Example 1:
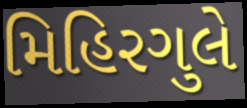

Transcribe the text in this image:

મિહિરગુલે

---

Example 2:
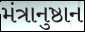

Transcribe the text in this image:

મંત્રાનુષ્ઠાન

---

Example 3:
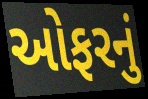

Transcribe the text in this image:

ઓફરનું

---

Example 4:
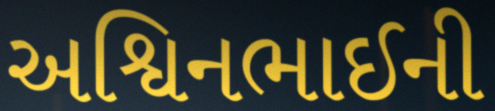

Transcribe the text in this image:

અશ્વિનભાઈની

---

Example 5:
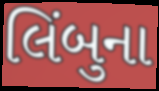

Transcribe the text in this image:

લિંબુના